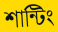
শান্টিং